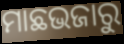
ମାଛଭଜାରୁ